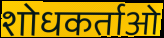
शोधकर्ताओ